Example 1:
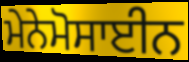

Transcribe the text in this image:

ਮੇਨੇਮੋਸਾਈਨ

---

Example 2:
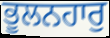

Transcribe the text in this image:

ਭੂਲਨਹਾਰੁ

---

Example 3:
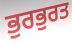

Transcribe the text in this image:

ਭੁਰਭੁਰਤ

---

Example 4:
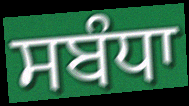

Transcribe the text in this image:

ਸਬੰਧਾ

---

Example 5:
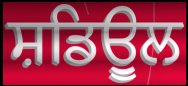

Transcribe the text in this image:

ਸ਼ਡਿਉੂਲ